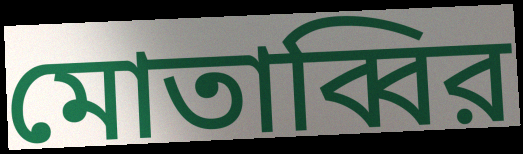
মোতাব্বির